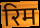
रिम